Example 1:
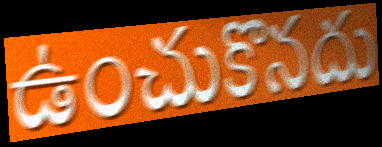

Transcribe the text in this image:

ఉంచుకొనదు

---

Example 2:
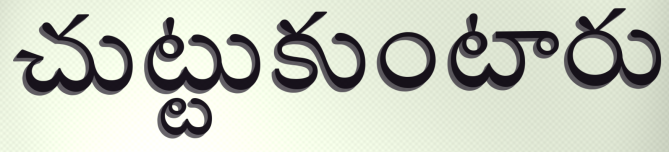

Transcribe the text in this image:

చుట్టుకుంటారు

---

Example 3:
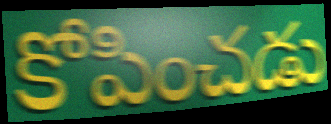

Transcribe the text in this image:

కోపించడు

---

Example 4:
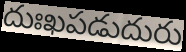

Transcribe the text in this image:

దుఃఖపడుదురు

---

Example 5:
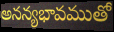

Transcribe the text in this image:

అనన్యభావముతో